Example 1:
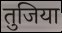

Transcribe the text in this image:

तुजिया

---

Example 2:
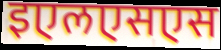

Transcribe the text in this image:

इएलएसएस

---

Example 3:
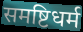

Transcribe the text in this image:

समष्टिधर्म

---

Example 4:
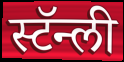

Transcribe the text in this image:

स्टॅन्ली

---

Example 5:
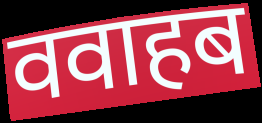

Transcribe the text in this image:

ववाहब